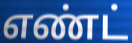
எண்ட்